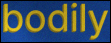
bodily